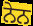
ਨੇਨ